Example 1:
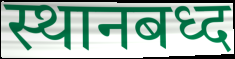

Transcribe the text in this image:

स्थानबध्द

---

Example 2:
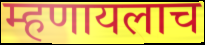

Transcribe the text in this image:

म्हणायलाच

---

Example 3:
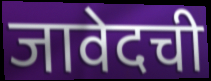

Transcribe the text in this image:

जावेदची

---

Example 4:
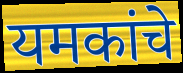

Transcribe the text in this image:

यमकांचे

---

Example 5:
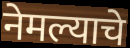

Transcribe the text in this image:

नेमल्याचे